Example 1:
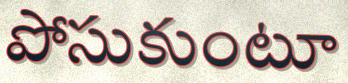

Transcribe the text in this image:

పోసుకుంటూ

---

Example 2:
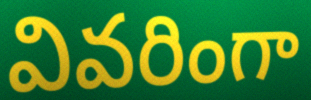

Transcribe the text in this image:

వివరింగా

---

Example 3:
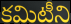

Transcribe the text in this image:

కమిటీని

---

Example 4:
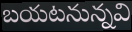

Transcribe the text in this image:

బయటనున్నవి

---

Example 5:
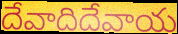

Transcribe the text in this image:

దేవాదిదేవాయ